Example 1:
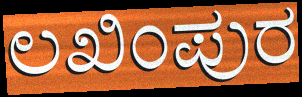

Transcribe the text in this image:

ಲಖಿಂಪುರ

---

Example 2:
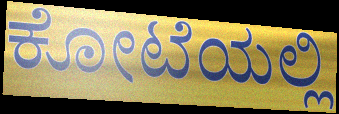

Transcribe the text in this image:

ಕೋಟೆಯಲ್ಲಿ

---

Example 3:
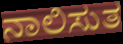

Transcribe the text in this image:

ನಾಲಿಸುತ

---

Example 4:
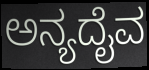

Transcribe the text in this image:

ಅನ್ಯದೈವ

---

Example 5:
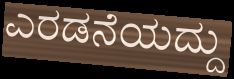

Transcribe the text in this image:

ಎರಡನೆಯದ್ದು